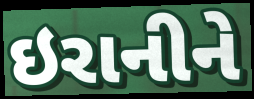
ઇરાનીને